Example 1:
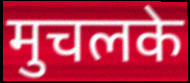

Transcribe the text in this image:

मुचलके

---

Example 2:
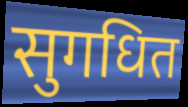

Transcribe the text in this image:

सुगधित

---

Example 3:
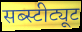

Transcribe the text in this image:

सब्स्टीट्यूट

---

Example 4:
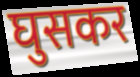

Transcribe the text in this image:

घुसकर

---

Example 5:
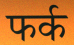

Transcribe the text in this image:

फर्क